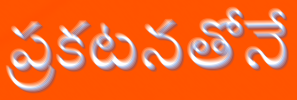
ప్రకటనతోనే